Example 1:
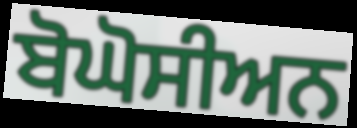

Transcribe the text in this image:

ਬੋਘੋਸੀਅਨ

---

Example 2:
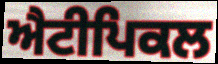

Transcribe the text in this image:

ਐਟੀਪਿਕਲ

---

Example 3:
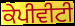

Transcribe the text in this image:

ਕੇਪੀਵੀਟੀ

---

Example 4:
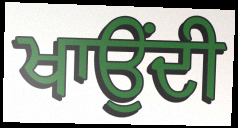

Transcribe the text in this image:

ਖਾਉਂਦੀ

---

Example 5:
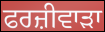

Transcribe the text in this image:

ਫਰਜ਼ੀਵਾਡ਼ਾ